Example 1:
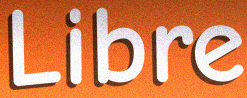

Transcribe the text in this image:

Libre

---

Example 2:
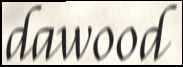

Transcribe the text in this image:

dawood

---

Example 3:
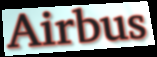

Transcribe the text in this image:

Airbus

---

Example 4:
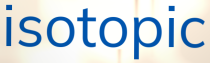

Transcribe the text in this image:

isotopic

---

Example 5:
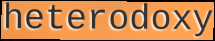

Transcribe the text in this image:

heterodoxy